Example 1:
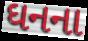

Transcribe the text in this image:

ઘનના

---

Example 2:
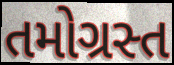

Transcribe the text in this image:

તમોગ્રસ્ત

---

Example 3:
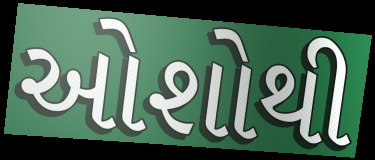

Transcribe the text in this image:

ઓશોથી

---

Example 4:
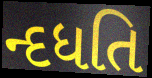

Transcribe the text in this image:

ન્દધતિ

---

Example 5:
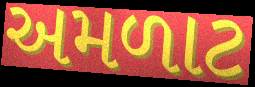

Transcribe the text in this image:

અમળાટ